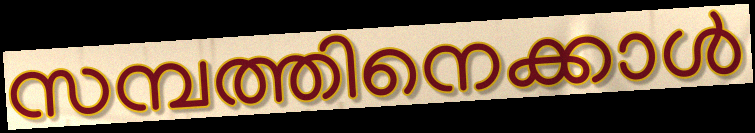
സമ്പത്തിനെക്കാൾ